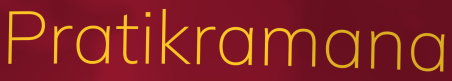
Pratikramana